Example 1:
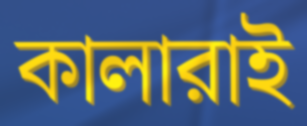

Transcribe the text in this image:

কালারাই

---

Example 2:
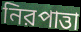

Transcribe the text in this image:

নিরপাত্তা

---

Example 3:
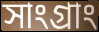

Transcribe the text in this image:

সাংগ্রাং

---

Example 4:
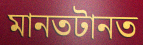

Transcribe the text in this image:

মানতটানত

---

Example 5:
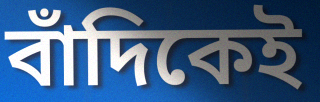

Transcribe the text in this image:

বাঁদিকেই